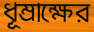
ধূম্রাক্ষের